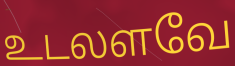
உடலளவே